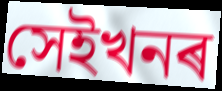
সেইখনৰ